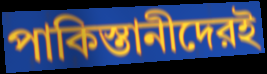
পাকিস্তানীদেরই